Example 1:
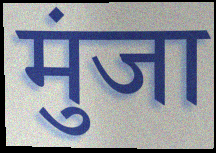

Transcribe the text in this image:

मुंजा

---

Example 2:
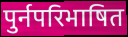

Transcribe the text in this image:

पुर्नपरिभाषित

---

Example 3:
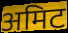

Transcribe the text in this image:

अमिट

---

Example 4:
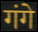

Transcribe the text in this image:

गंगे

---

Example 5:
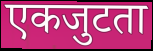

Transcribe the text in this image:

एकजुटता